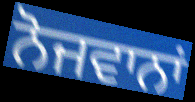
ਨੋਜਵਾਨਾਂ